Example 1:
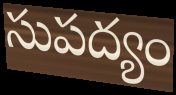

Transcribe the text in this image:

సుపద్యం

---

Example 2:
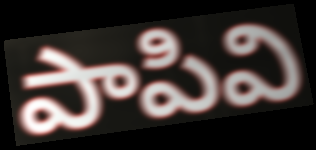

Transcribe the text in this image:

పాపివి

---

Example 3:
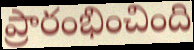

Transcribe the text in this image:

ప్రారంభించింది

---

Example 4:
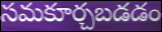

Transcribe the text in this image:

సమకూర్చబడడం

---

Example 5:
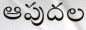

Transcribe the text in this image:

ఆపుదల